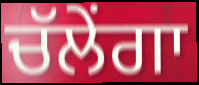
ਚੱਲੇਂਗਾ